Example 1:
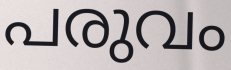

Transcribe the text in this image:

പരുവം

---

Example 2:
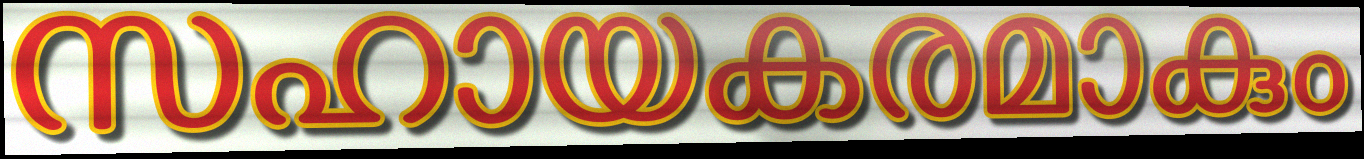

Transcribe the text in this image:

സഹായകരമാകും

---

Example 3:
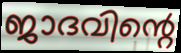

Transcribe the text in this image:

ജാദവിന്റെ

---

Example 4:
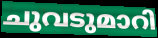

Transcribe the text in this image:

ചുവടുമാറി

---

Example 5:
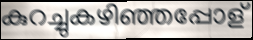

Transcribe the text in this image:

കുറച്ചുകഴിഞ്ഞപ്പോള്